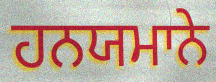
ਹਨਯਮਾਨੇ